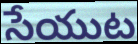
సేయుట